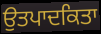
ਉਤਪਾਦਕਿਤਾ